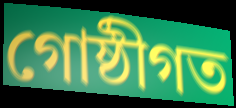
গোষ্ঠীগত